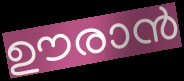
ഊരാൻ